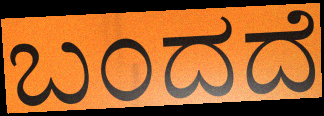
ಬಂದದೆ